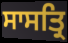
ਸਾਸਤ੍ਰਿ